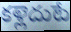
కళ్లెదుటే